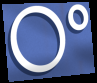
ଠଂ